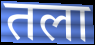
तला